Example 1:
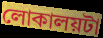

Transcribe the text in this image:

লোকালয়টা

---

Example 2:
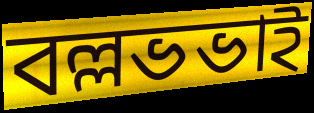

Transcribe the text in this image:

বল্লভভাই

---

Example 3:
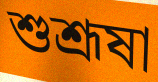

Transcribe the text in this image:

শুশ্রূষা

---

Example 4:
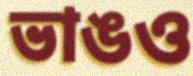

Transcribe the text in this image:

ভাঙও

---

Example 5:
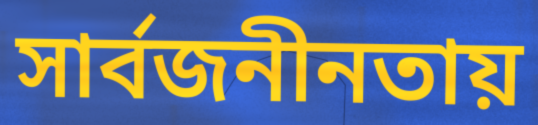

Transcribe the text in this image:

সার্বজনীনতায়